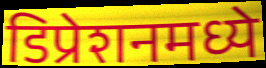
डिप्रेशनमध्ये